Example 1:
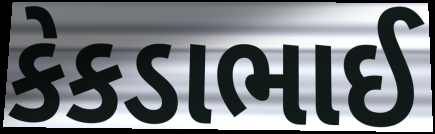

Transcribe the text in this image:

કેકડાભાઈ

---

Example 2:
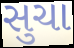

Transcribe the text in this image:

સુચા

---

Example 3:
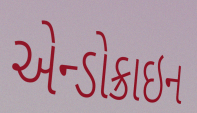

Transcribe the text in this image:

એન્ડોક્રાઇન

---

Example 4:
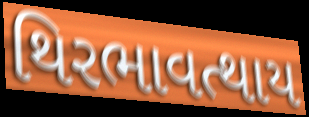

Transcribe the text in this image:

થિરભાવત્થાય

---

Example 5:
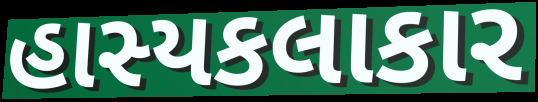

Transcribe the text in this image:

હાસ્યકલાકાર